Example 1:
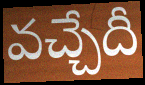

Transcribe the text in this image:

వచ్చేదీ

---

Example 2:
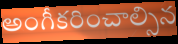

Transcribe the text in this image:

అంగీకరించాల్సిన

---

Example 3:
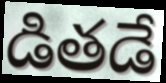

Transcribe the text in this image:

డితడే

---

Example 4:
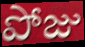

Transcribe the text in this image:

పోజు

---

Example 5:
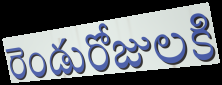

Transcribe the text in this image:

రెండురోజులకి